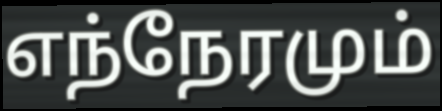
எந்நேரமும்